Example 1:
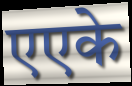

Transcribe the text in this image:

एएके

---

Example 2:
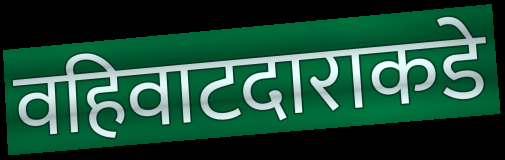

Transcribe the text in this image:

वहिवाटदाराकडे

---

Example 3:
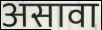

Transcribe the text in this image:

असावा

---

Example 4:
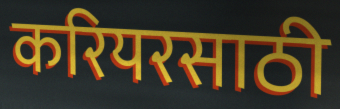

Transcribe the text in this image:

करियरसाठी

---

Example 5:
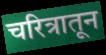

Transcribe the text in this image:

चरित्रातून